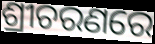
ଶ୍ରୀଚରଣରେ